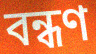
বন্ধণ